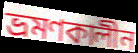
ভ্রমণকালীন